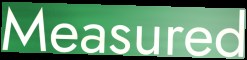
Measured